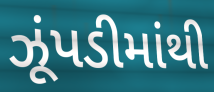
ઝૂંપડીમાંથી